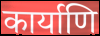
कार्याणि